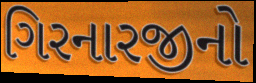
ગિરનારજીનો